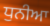
ਧੁਨੀਆ